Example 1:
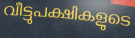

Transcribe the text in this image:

വീട്ടുപക്ഷികളുടെ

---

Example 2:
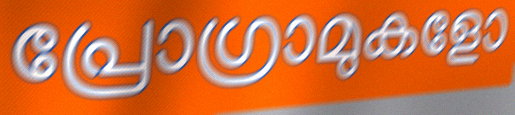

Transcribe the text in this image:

പ്രോഗ്രാമുകളോ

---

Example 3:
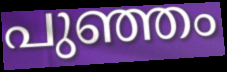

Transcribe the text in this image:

പുഞ്ഞം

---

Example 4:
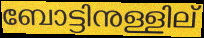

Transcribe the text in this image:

ബോട്ടിനുള്ളില്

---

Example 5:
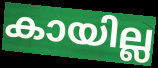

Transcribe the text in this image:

കായില്ല